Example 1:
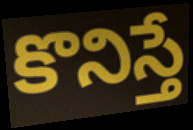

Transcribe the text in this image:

కొనిస్తే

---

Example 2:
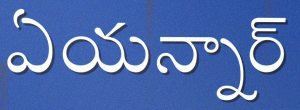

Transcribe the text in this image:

ఏయన్నార్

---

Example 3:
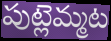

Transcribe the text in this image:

పుట్లెమ్మట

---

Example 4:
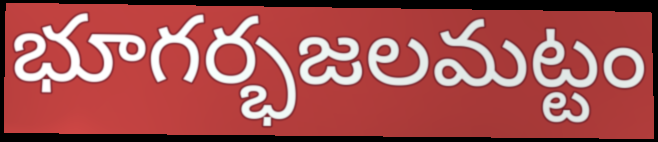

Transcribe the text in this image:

భూగర్భజలమట్టం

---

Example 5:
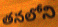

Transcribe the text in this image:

తనలోని